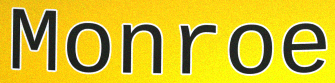
Monroe